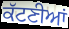
ਕੱਟਣੀਆਂ